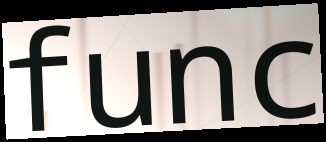
func